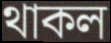
থাকল